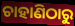
ଚାହାଣିଠାରୁ